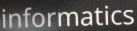
informatics